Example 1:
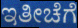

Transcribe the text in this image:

ಇತೀಚೆಗೆ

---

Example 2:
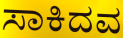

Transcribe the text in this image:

ಸಾಕಿದವ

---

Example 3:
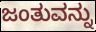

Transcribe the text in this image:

ಜಂತುವನ್ನು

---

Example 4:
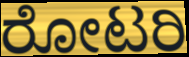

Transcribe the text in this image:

ರೋಟರಿ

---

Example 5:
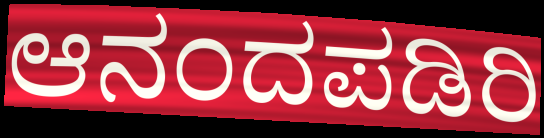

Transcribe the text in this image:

ಆನಂದಪಡಿರಿ